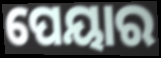
ପେୟାର